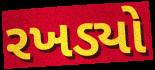
રખડ્યો